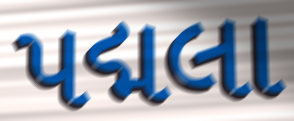
પદ્મલા